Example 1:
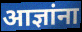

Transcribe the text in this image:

आज्ञांना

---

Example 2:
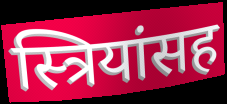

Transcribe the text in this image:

स्त्रियांसह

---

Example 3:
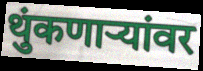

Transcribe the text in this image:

थुंकणाऱ्यांवर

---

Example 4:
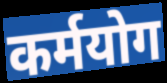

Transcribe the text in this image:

कर्मयोग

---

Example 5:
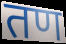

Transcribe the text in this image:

तण